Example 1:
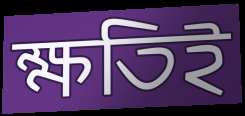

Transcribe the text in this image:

ক্ষতিই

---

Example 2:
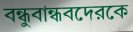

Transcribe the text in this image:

বন্ধুবান্ধবদেরকে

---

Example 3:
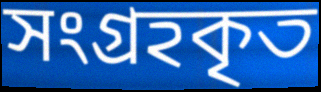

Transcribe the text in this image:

সংগ্রহকৃত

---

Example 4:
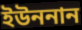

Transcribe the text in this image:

ইউননান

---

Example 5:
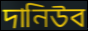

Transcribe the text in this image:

দানিউব